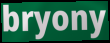
bryony